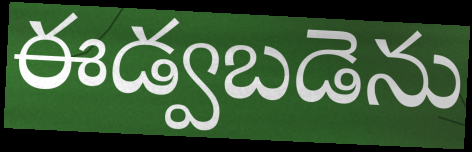
ఈడ్వబడెను